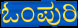
ಓಂಪುರಿ